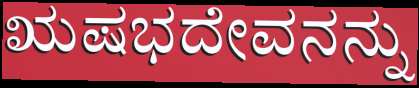
ಋಷಭದೇವನನ್ನು